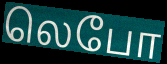
லெபோ